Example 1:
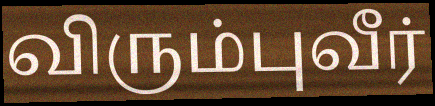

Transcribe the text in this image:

விரும்புவீர்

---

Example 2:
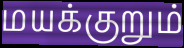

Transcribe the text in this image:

மயக்குறும்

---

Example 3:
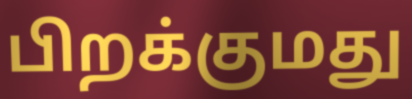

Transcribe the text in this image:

பிறக்குமது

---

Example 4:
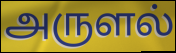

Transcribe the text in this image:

அருளல்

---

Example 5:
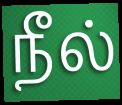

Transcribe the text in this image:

நீல்